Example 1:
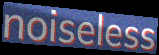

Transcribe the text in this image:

noiseless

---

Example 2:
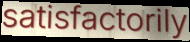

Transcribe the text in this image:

satisfactorily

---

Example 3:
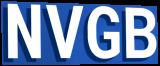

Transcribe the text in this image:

NVGB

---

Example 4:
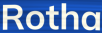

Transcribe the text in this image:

Rotha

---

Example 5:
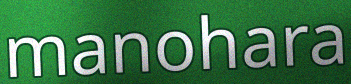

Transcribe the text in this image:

manohara